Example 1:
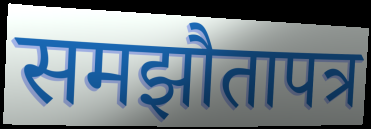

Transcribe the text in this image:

समझौतापत्र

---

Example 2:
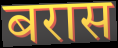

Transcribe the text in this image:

बरास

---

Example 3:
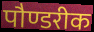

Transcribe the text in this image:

पौण्डरीक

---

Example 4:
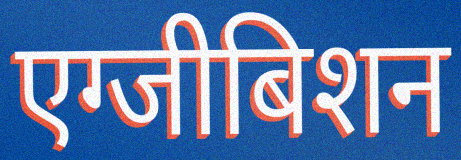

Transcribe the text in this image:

एग्जीबिशन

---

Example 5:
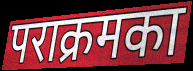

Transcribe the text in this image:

पराक्रमका